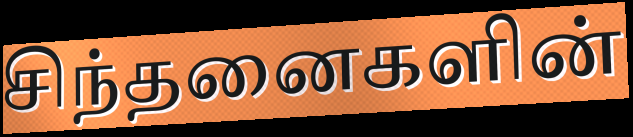
சிந்தனைகளின்